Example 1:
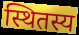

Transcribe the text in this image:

स्थितस्य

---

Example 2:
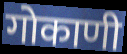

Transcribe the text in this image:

गोकाणी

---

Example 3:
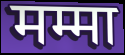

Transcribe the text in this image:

मम्मा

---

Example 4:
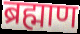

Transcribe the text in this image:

ब्रह्माण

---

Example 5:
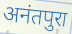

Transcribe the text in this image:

अनंतपुरा